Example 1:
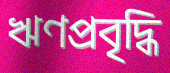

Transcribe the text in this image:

ঋণপ্রবৃদ্ধি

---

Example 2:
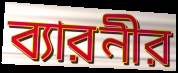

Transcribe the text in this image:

ব্যারনীর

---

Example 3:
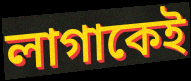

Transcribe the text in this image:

লাগাকেই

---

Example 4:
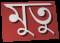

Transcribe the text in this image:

মুতু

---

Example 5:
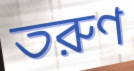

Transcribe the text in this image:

তরুণ